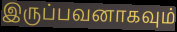
இருப்பவனாகவும்